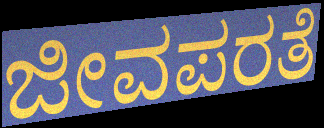
ಜೀವಪರತೆ